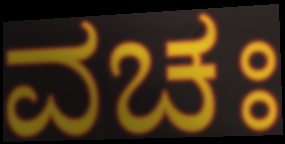
ವಚಃ